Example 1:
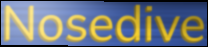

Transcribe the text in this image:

Nosedive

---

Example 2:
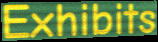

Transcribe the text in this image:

Exhibits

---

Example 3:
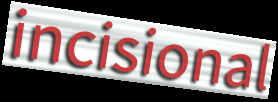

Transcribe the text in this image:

incisional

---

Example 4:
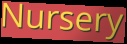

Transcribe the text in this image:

Nursery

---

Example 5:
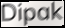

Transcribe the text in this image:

Dipak